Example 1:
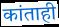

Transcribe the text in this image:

कांताही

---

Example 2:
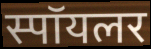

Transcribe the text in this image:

स्पॉयलर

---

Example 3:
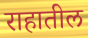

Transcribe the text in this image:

राहातील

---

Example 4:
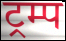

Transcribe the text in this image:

ट्रम्प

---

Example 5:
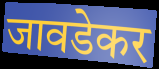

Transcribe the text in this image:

जावडेकर